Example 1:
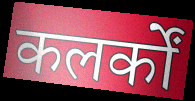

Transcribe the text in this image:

कलर्कों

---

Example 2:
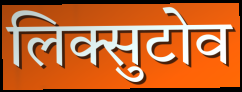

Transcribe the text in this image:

लिक्सुटोव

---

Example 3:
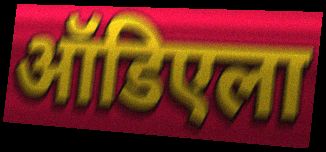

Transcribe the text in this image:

ऑडिएला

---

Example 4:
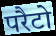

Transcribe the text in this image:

परैटो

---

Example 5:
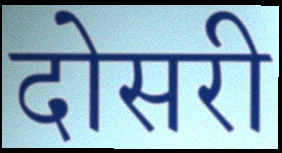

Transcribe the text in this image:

दोसरी